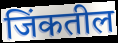
जिंकतील